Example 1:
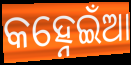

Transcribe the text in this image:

କହ୍ନେଇଁଆ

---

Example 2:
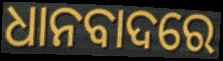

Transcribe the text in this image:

ଧାନବାଦରେ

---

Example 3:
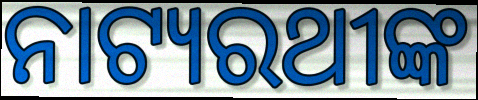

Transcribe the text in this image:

ନାଟ୍ୟରଥୀଙ୍କ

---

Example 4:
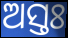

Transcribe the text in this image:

ଅସ୍ତଃ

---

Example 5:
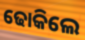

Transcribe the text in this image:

ଢୋକିଲେ